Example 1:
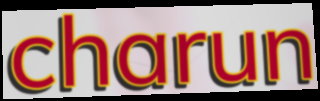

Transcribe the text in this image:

charun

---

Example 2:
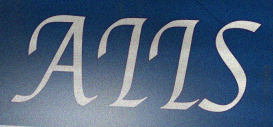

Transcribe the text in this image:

AIIS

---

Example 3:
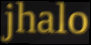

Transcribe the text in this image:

jhalo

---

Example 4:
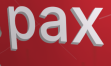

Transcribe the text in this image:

pax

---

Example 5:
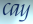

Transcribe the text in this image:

cay